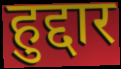
हुद्दार